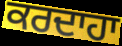
ਕਰਦਾਹਾ